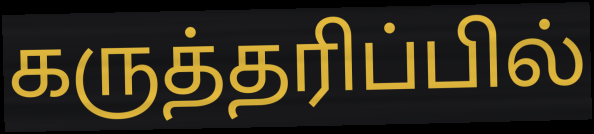
கருத்தரிப்பில்